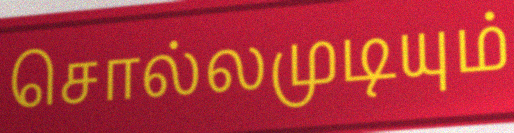
சொல்லமுடியும்